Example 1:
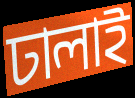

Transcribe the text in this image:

ঢালাই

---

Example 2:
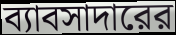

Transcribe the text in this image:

ব্যাবসাদারের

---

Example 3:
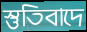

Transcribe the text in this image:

স্তুতিবাদে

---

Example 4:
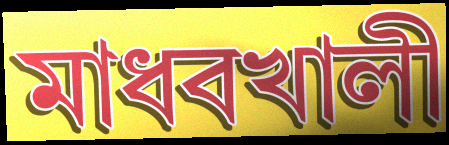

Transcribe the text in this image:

মাধবখালী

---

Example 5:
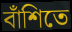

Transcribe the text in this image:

বাঁশিতে